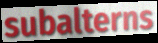
subalterns